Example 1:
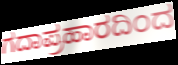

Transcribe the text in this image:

ಗದಾಪ್ರಹಾರದಿಂದ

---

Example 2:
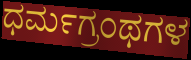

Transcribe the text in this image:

ಧರ್ಮಗ್ರಂಥಗಳ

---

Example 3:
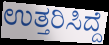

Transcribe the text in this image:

ಉತ್ತರಿಸಿದ್ದೆ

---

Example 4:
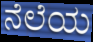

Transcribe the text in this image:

ನೆಲೆಯ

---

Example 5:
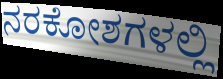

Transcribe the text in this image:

ನರಕೋಶಗಳಲ್ಲಿ